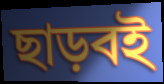
ছাড়বই